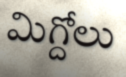
మిగ్దోలు